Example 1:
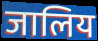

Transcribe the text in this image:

जालिय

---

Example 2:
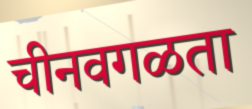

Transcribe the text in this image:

चीनवगळता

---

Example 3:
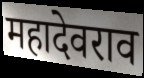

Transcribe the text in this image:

महादेवराव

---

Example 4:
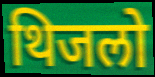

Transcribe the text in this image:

थिजलो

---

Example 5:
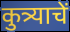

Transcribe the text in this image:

कुत्र्याचें